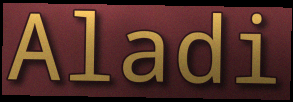
Aladi